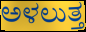
ಅಳಲುತ್ತ